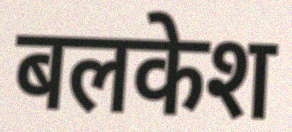
बलकेश